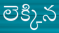
లెక్కిన